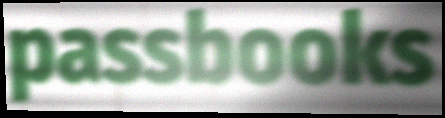
passbooks